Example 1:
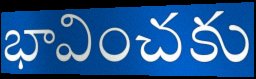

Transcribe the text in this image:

భావించకు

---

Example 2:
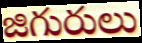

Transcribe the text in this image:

జిగురులు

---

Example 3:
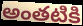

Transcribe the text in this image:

అంతటికి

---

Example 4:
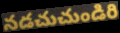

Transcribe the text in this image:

నడచుచుండిరి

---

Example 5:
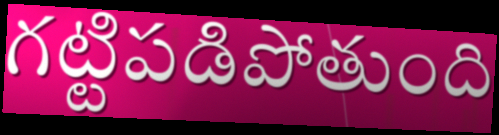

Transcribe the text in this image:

గట్టిపడిపోతుంది